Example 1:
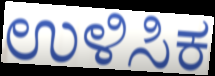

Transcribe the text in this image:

ಉಳಿಸಿಕ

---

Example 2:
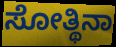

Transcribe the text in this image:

ಸೋತ್ಥಿನಾ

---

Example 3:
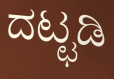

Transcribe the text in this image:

ದಟ್ಟಡಿ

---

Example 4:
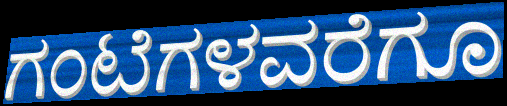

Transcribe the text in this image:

ಗಂಟೆಗಳವರೆಗೂ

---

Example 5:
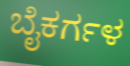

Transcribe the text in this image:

ಬೈಕರ್ಗಳ